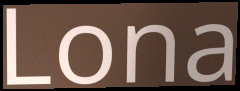
Lona